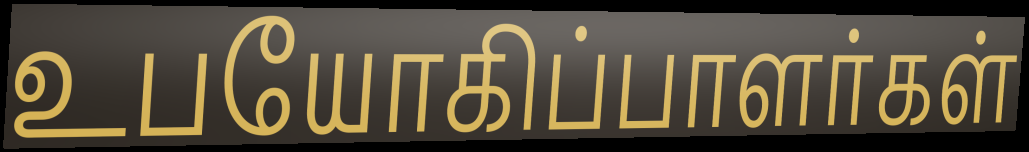
உபயோகிப்பாளர்கள்